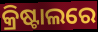
କ୍ରିଷ୍ଟାଲରେ